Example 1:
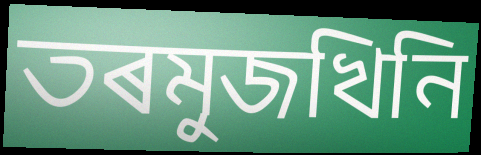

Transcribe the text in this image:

তৰমুজখিনি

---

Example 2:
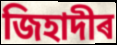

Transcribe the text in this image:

জিহাদীৰ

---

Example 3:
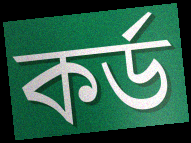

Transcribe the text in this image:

কৰ্ড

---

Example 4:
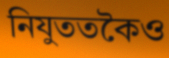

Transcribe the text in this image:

নিযুততকৈও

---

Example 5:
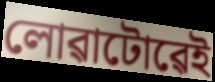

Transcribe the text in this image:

লোৱাটোৱেই